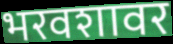
भरवशावर